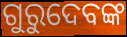
ଗୁରୁଦେବଙ୍କ